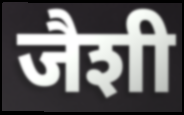
जैशी